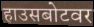
हाउसबोटवर